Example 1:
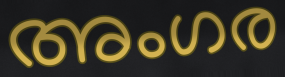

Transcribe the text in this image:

അംഗര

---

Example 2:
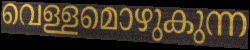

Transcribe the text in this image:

വെള്ളമൊഴുകുന്ന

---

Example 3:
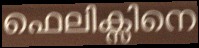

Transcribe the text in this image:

ഫെലിക്സിനെ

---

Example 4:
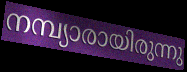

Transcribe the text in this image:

നമ്പ്യാരായിരുന്നു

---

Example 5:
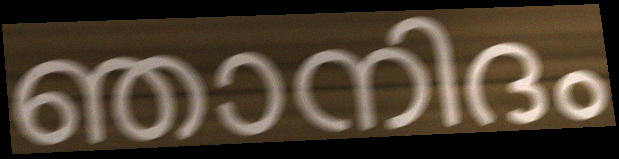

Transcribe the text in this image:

ഞാനിദം